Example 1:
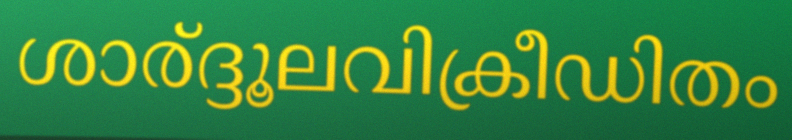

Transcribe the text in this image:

ശാര്ദ്ദൂലവിക്രീഡിതം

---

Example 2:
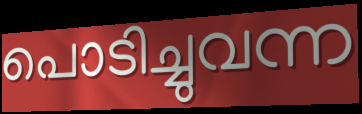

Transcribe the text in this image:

പൊടിച്ചുവന്ന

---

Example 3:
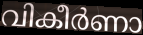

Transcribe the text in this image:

വികീർണാ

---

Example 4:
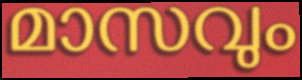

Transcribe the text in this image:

മാസവും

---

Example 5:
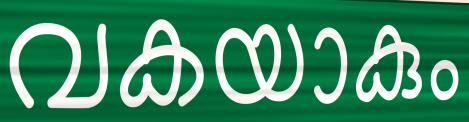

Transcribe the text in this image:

വകയാകും